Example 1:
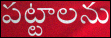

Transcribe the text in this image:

పట్టాలను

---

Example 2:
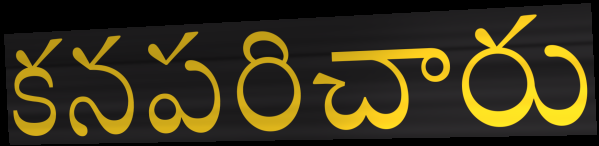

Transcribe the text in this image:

కనపరిచారు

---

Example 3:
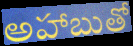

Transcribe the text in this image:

అహాబుతో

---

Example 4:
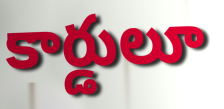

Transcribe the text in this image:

కార్డులూ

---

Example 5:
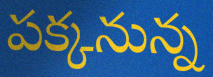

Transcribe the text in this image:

పక్కనున్న